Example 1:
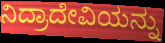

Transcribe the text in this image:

ನಿದ್ರಾದೇವಿಯನ್ನು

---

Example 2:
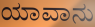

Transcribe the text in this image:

ಯಾವಾನು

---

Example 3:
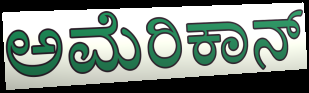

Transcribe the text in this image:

ಅಮೆರಿಕಾನ್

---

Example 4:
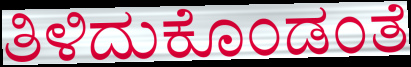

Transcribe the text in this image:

ತಿಳಿದುಕೊಂಡಂತೆ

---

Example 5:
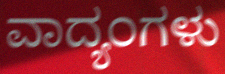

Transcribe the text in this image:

ವಾದ್ಯಂಗಳು